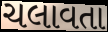
ચલાવતા